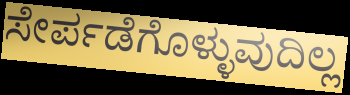
ಸೇರ್ಪಡೆಗೊಳ್ಳುವುದಿಲ್ಲ